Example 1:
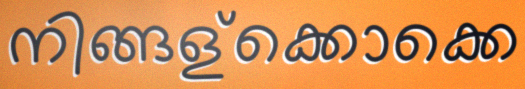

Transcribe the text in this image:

നിങ്ങള്ക്കൊക്കെ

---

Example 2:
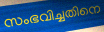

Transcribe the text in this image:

സംഭവിച്ചതിനെ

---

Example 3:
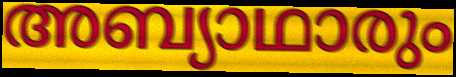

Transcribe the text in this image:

അബ്യാഥാരും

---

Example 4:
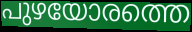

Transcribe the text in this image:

പുഴയോരത്തെ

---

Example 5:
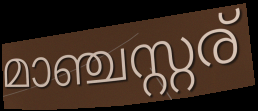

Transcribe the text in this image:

മാഞ്ചസ്റ്റര്